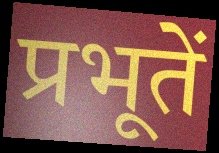
प्रभूतें